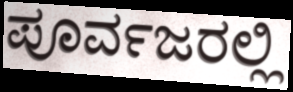
ಪೂರ್ವಜರಲ್ಲಿ